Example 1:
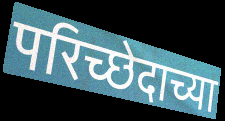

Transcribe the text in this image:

परिच्छेदाच्या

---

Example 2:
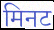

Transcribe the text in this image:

मिनट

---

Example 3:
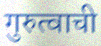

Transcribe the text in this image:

गुरुत्वाची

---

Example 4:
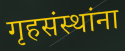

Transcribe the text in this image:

गृहसंस्थांना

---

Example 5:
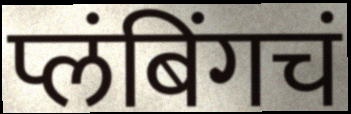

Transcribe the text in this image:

प्लंबिंगचं